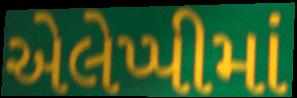
એલેપ્પીમાં